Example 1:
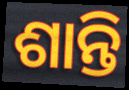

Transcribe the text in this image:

ଶାନ୍ତି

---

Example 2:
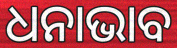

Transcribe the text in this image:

ଧନାଭାବ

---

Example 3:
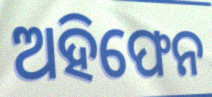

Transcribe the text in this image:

ଅହିଫେନ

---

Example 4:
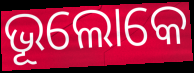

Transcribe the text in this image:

ଭୂଲୋକେ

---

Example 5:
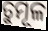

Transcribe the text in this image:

ତୁମୂଳ